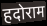
हदोराम